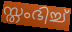
സ്തംഭിച്ച്